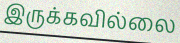
இருக்கவில்லை